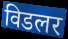
विडलर